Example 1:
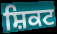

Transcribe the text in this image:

ਸ਼ਿਕਟ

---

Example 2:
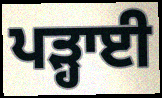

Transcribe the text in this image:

ਪੜ੍ਹਾਈ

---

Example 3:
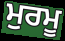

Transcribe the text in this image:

ਮੁਰਮੂ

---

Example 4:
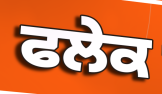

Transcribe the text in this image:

ਫਲੇਕ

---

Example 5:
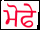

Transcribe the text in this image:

ਮੋਫੇ